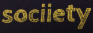
sociiety